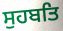
ਸੁਹਬਤਿ